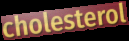
cholesterol